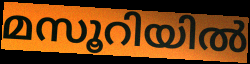
മസൂറിയിൽ